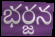
భర్జన